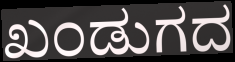
ಖಂಡುಗದ